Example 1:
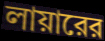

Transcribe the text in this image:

লায়ারের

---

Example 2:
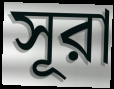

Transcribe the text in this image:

সূরা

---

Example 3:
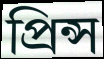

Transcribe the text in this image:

প্রিন্স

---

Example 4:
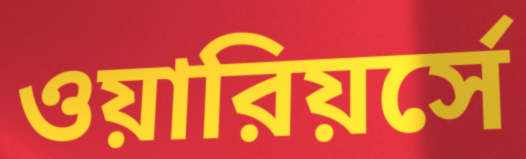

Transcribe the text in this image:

ওয়ারিয়র্সে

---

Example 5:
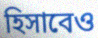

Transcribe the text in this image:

হিসাবেও